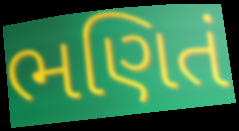
ભણિતં